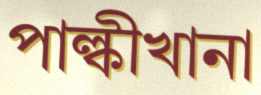
পাল্কীখানা